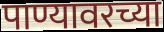
पाण्यावरच्या